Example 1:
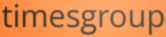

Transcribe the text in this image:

timesgroup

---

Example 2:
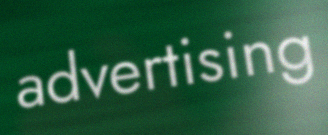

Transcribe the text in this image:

advertising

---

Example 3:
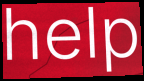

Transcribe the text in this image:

help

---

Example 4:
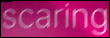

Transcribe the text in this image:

scaring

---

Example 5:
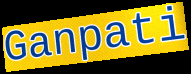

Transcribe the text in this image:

Ganpati